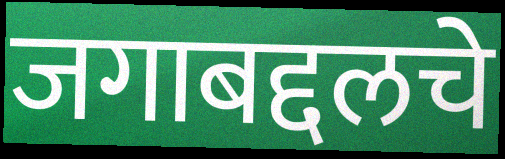
जगाबद्दलचे